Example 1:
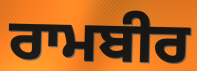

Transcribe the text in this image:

ਰਾਮਬੀਰ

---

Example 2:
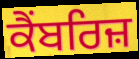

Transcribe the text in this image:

ਕੈਂਬਰਿਜ਼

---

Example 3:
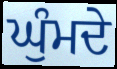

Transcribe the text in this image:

ਘੁੰਮਦੇ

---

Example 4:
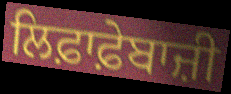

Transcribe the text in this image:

ਲਿਫ਼ਾਫ਼ੇਬਾਜ਼ੀ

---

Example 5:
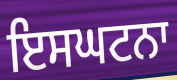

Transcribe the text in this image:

ਇਸਘਟਨਾ